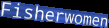
Fisherwomen